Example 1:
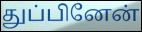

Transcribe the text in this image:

துப்பினேன்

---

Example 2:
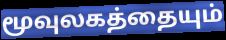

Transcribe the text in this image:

மூவுலகத்தையும்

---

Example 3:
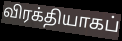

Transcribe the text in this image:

விரக்தியாகப்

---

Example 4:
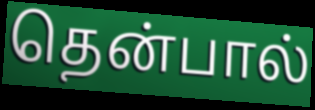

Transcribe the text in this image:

தென்பால்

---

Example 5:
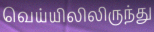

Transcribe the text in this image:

வெய்யிலிலிருந்து